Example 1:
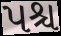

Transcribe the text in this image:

પશ્ચ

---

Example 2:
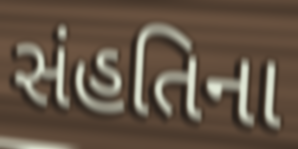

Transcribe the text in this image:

સંહતિના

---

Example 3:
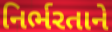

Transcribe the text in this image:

નિર્ભરતાને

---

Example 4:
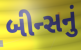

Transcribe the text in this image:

બીન્સનું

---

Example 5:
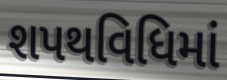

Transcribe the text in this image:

શપથવિધિમાં